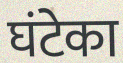
घंटेका